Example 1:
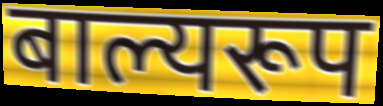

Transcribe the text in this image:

बाल्यरूप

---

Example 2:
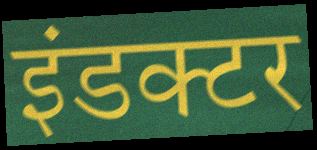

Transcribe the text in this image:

इंडक्टर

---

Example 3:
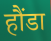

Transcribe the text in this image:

हौंडा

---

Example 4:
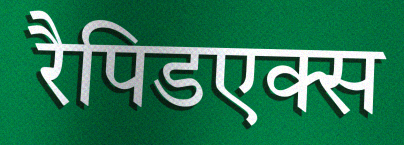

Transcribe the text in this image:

रैपिडएक्स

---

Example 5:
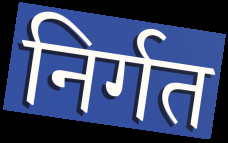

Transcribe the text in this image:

निर्गत